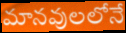
మానవులలోనే